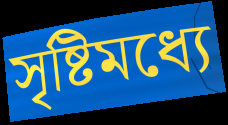
সৃষ্টিমধ্যে